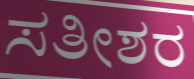
ಸತೀಶರ